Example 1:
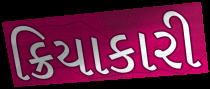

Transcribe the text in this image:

ક્રિયાકારી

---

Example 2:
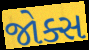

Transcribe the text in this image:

જોક્સ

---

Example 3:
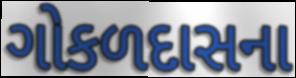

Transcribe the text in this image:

ગોકળદાસના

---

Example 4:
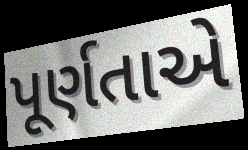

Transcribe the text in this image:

પૂર્ણતાએ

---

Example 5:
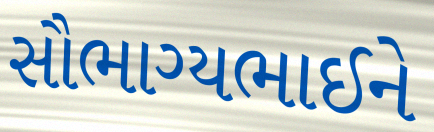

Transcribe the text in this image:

સૌભાગ્યભાઈને